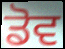
ਡੋਵ